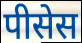
पीसेस